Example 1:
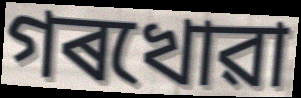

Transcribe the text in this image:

গৰখোৱা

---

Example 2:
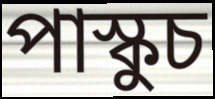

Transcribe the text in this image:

পাস্কুচ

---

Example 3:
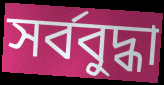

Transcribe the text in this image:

সৰ্ববুদ্ধা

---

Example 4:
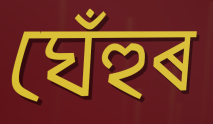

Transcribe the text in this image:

ঘেঁহুৰ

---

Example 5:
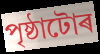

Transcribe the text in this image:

পৃষ্ঠাটোৰ